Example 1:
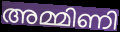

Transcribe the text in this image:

അമ്മിണി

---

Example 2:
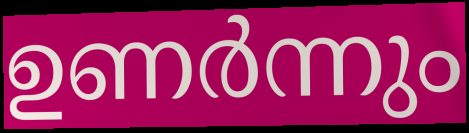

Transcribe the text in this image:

ഉണർന്നും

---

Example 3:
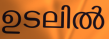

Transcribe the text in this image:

ഉടലിൽ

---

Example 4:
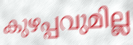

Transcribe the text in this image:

കുഴപ്പവുമില്ല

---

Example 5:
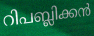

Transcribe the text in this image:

റിപബ്ലിക്കൻ